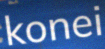
konei